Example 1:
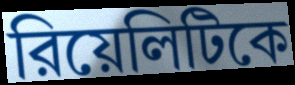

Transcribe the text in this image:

রিয়েলিটিকে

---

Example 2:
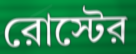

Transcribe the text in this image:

রোস্টের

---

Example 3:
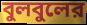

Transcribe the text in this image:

বুলবুলের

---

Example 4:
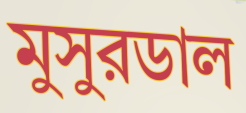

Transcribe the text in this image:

মুসুরডাল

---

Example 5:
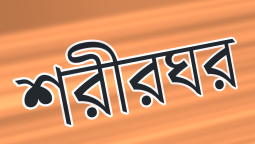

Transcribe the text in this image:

শরীরঘর